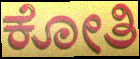
ಕೋತಿ